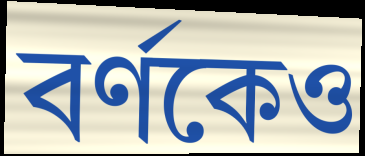
বর্ণকেও